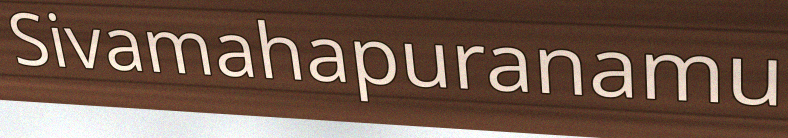
Sivamahapuranamu